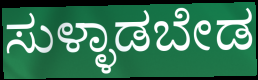
ಸುಳ್ಳಾಡಬೇಡ